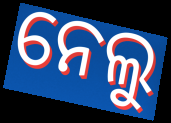
ନେଲୁ